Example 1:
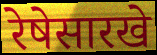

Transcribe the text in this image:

रेषेसारखे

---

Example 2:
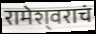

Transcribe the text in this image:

रामेश्वराचं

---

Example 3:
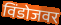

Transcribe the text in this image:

विंडोजवर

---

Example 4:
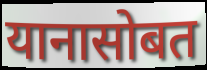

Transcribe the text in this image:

यानासोबत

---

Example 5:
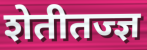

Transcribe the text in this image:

शेतीतज्ज्ञ